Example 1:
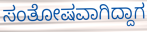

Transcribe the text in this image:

ಸಂತೋಷವಾಗಿದ್ದಾಗ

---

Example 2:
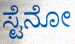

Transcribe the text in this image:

ಸ್ಟೆನೋ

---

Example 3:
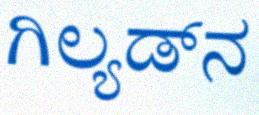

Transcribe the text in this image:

ಗಿಲ್ಯಡ್‌ನ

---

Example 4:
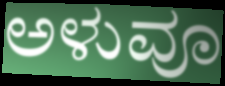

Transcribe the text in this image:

ಅಳುವೂ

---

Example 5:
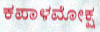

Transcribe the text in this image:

ಕಪಾಳಮೋಕ್ಷ